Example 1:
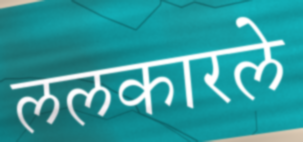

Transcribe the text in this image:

ललकारले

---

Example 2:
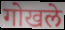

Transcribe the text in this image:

गोखले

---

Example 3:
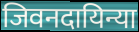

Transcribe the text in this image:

जिवनदायिन्या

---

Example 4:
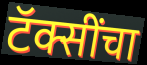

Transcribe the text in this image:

टॅक्सींचा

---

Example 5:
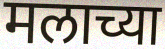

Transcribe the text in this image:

मलाच्या